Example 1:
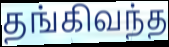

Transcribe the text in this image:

தங்கிவந்த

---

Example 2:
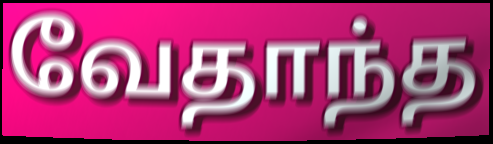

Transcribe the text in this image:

வேதாந்த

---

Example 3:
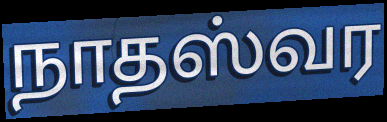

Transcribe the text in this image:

நாதஸ்வர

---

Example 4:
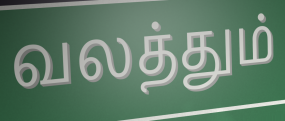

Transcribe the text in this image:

வலத்தும்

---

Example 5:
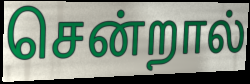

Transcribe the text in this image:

சென்றால்